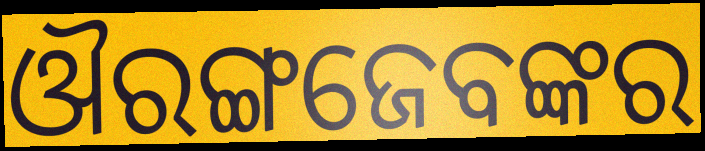
ଔରଙ୍ଗଜେବଙ୍କର